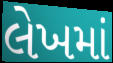
લેખમાં